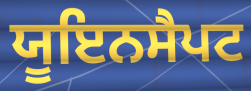
ਯੂਇਨਸੈਪਟ